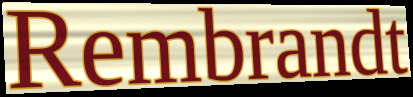
Rembrandt